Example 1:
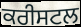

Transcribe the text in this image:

ਕਰੀਸਟਲ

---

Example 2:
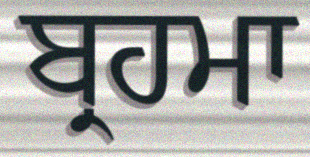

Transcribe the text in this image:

ਬ੍ਰਹਮਾ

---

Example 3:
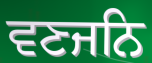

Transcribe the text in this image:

ਵਣਜਨਿ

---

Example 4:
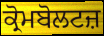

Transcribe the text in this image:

ਕ੍ਰੋਮਬੋਲਟਜ਼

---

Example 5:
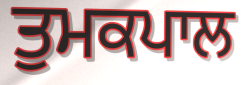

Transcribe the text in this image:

ਤੁਮਕਪਾਲ